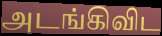
அடங்கிவிட